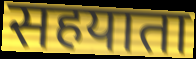
सहयाता